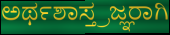
ಅರ್ಥಶಾಸ್ತ್ರಜ್ಞರಾಗಿ